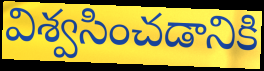
విశ్వసించడానికి